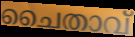
ചൈതാവ്